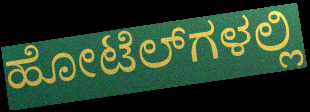
ಹೋಟೆಲ್‍ಗಳಲ್ಲಿ